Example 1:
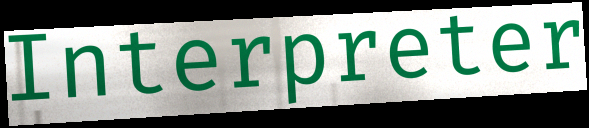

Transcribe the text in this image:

Interpreter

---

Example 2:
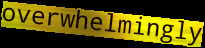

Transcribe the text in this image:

overwhelmingly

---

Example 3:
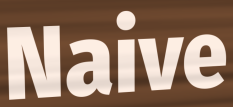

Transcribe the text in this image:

Naive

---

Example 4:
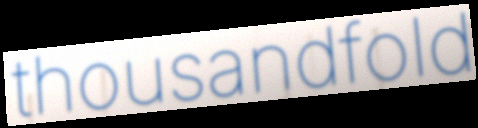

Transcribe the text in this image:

thousandfold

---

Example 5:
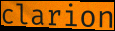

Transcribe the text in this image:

clarion